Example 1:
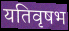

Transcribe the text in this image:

यतिवृषभ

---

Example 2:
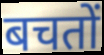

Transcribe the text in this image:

बचतों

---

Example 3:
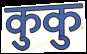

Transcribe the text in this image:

कुकु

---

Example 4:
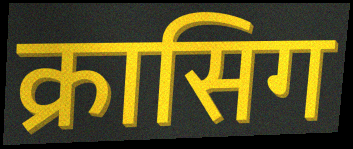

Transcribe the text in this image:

क्रासिग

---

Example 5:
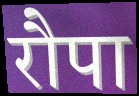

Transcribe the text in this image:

रौपा